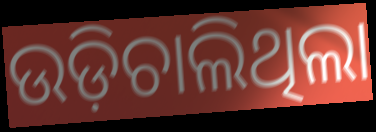
ଉଡ଼ିଚାଲିଥିଲା